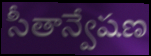
సీతాన్వేషణ